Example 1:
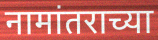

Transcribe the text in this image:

नामांतराच्या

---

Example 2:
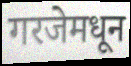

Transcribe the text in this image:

गरजेमधून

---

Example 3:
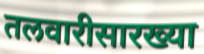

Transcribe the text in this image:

तलवारीसारख्या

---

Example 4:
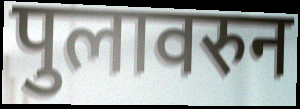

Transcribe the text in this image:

पुलावरुन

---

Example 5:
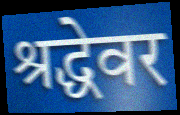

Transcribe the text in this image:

श्रद्धेवर